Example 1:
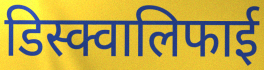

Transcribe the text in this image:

डिस्क्वालिफाई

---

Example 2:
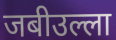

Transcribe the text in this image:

जबीउल्ला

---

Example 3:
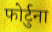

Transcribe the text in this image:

फोर्टुना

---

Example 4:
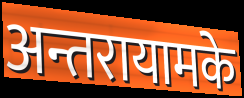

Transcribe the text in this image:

अन्तरायामके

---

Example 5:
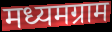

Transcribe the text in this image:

मध्यमग्राम